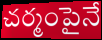
చర్మంపైనే